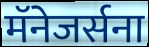
मॅनेजर्सना